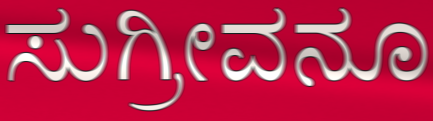
ಸುಗ್ರೀವನೂ